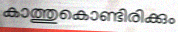
കാത്തുകൊണ്ടിരിക്കും